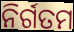
ନିର୍ଗତମ